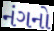
નંગનો